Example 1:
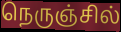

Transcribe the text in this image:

நெருஞ்சில்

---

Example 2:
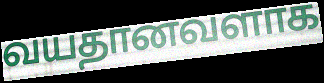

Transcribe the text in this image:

வயதானவளாக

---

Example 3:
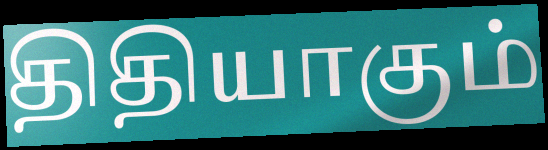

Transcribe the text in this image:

திதியாகும்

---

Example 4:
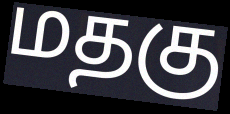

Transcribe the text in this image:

மதகு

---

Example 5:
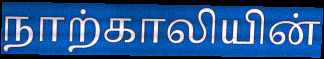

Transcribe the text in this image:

நாற்காலியின்